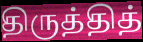
திருத்தித்